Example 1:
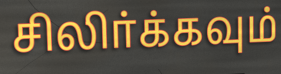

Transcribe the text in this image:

சிலிர்க்கவும்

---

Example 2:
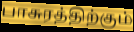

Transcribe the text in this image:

பாசுரத்திற்கும்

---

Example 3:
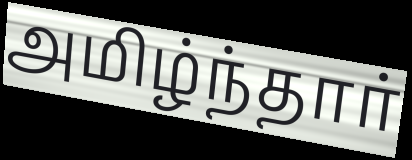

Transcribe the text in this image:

அமிழ்ந்தார்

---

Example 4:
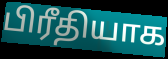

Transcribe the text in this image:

பிரீதியாக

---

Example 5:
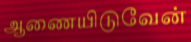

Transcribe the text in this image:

ஆணையிடுவேன்